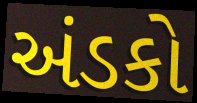
અંડકો